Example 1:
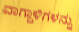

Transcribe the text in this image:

ವಾಗ್ದಾಳಿಗಳನ್ನು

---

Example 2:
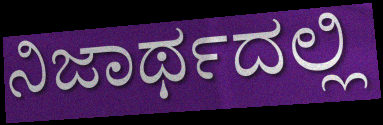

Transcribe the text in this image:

ನಿಜಾರ್ಥದಲ್ಲಿ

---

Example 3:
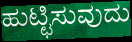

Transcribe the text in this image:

ಹುಟ್ಟಿಸುವುದು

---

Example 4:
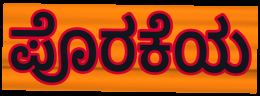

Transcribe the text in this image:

ಪೊರಕೆಯ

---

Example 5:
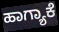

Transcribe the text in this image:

ಹಾಗ್ಯಾಕೆ